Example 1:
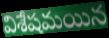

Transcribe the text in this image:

విశేషమయిన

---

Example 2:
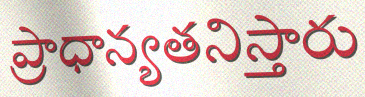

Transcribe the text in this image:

ప్రాధాన్యతనిస్తారు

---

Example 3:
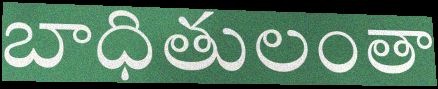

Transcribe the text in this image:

బాధితులంతా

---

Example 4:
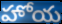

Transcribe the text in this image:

హోయ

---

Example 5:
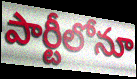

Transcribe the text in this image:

పార్టీలోనూ